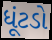
ધૂંટડો